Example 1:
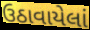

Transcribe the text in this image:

ઉઠાવાયેલાં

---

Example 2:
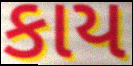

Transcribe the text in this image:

કાય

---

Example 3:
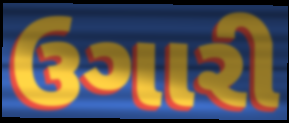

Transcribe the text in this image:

ઉગારી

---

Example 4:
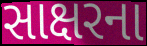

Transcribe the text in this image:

સાક્ષરના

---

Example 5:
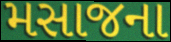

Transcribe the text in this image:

મસાજના